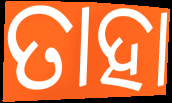
ତାହା